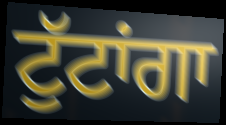
ਟੁੱਟਾਂਗਾ